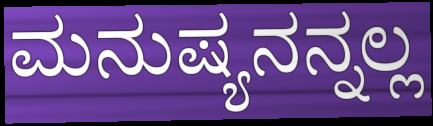
ಮನುಷ್ಯನನ್ನಲ್ಲ